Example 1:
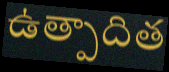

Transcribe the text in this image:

ఉత్పాదిత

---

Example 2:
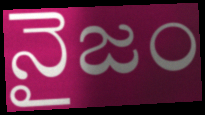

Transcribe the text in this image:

నైజం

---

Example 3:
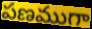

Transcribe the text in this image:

పణముగా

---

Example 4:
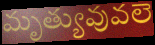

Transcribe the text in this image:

మృత్యువువలె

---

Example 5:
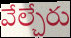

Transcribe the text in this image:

వేల్చేరు